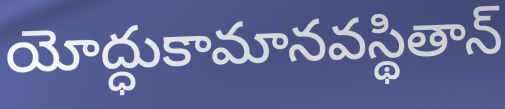
యోద్ధుకామానవస్థితాన్